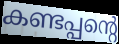
കണ്ടപ്പന്റെ